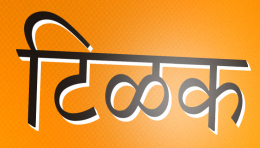
टिळक